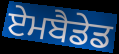
ਏਮਬੈਡੇਡ